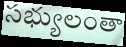
సభ్యులంతా